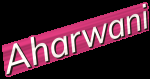
Aharwani